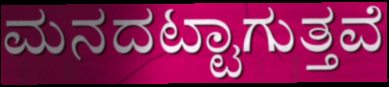
ಮನದಟ್ಟಾಗುತ್ತವೆ